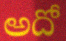
అదో